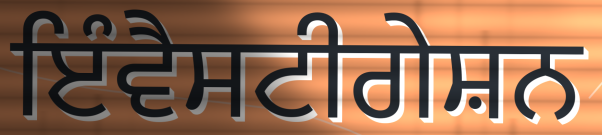
ਇੰਵੈਸਟੀਗੇਸ਼ਨ